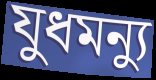
যুধমন্যু